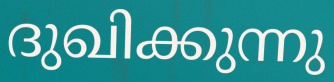
ദുഖിക്കുന്നു